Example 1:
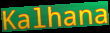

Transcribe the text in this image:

Kalhana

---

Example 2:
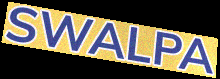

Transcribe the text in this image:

SWALPA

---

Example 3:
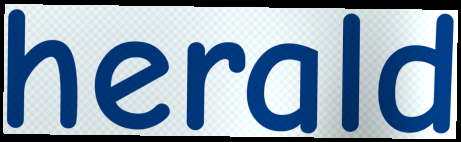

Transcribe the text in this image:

herald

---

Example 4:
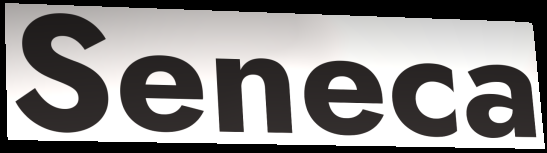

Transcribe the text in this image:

Seneca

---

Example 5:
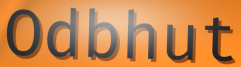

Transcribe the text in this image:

Odbhut